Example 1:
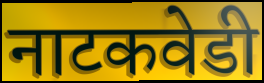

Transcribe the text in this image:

नाटकवेडी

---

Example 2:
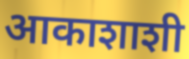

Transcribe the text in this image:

आकाशाशी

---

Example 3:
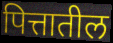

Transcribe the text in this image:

पित्तातील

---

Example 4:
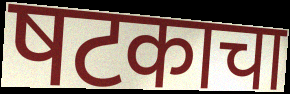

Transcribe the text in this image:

षटकाचा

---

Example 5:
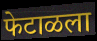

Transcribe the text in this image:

फेटाळला